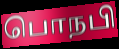
பொநபி